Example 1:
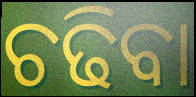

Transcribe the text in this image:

ଚଢିବା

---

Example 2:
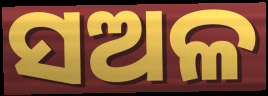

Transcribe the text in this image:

ସଅଳ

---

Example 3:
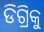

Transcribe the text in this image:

ଡିଗ୍ରିକୁ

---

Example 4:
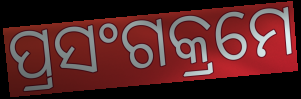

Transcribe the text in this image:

ପ୍ରସଂଗକ୍ରମେ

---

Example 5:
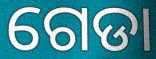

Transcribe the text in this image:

ଗେଡା